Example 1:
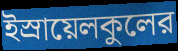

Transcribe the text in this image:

ইস্রায়েলকুলের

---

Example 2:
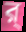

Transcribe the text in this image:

র্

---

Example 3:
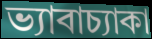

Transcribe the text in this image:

ভ্যাবাচ্যাকা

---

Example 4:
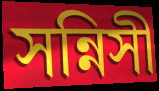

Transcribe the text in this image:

সন্নিসী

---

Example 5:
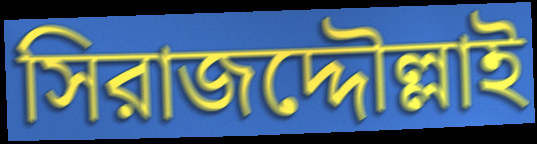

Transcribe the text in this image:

সিরাজদ্দৌল্লাই